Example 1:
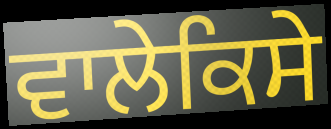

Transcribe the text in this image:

ਵਾਲੇਕਿਸੇ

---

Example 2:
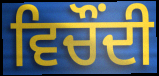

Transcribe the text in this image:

ਵਿਚੌਂਦੀ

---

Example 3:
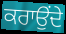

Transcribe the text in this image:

ਕਰਾਉੰਦੇ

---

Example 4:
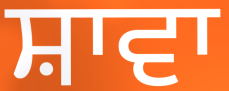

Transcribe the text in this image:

ਸ਼ਾਵਾ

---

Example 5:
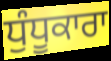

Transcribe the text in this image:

ਧੁੰਧੂਕਾਰਾ